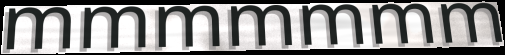
mmmmmmm